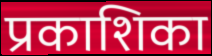
प्रकाशिका